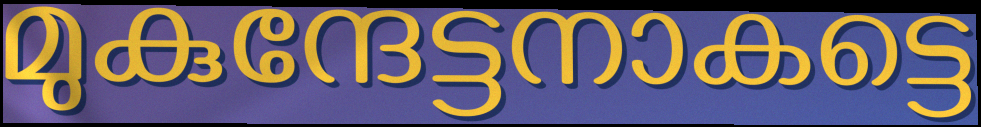
മുകുന്ദേട്ടനാകട്ടെ